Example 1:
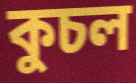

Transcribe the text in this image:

কুচল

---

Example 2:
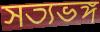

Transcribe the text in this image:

সত্যভঙ্গ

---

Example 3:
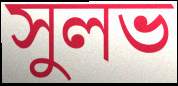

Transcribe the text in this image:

সুলভ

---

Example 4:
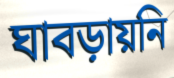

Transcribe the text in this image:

ঘাবড়ায়নি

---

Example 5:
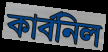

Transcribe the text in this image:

কার্বনিল